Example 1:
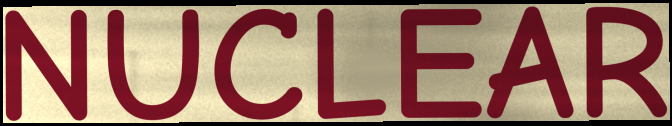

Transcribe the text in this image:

NUCLEAR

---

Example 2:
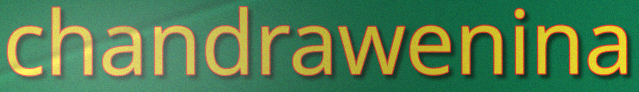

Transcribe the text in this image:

chandrawenina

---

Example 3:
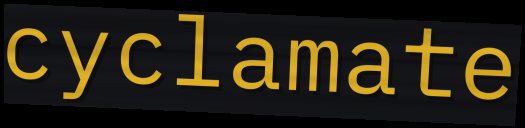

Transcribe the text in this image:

cyclamate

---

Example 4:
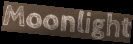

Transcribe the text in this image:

Moonlight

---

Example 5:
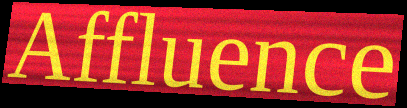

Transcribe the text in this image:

Affluence